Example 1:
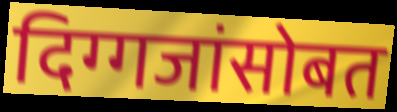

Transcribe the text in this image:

दिग्गजांसोबत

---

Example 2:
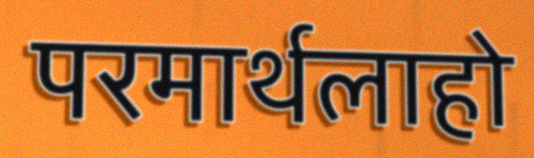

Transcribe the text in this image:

परमार्थलाहो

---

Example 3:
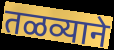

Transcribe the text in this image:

तळव्याने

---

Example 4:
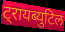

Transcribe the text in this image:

ट्रायब्युटिल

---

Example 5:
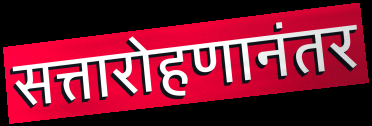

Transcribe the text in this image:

सत्तारोहणानंतर